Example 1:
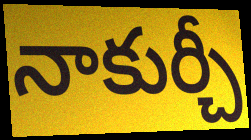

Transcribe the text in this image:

నాకుర్చీ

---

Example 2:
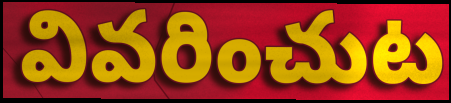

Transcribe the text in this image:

వివరించుట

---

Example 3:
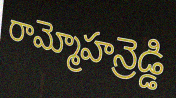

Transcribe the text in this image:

రామ్మోహన్రెడ్డి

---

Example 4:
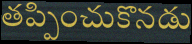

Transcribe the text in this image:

తప్పించుకొనడు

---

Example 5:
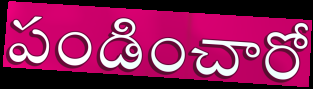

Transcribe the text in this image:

పండించారో